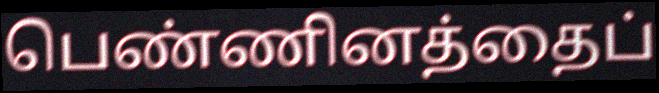
பெண்ணினத்தைப்